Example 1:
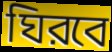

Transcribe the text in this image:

ঘিরবে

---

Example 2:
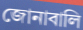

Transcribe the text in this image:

জোনাবালি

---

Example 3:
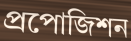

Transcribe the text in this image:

প্রপোজিশন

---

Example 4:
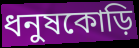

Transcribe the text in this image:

ধনুষকোড়ি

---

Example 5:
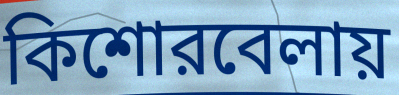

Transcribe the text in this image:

কিশোরবেলায়